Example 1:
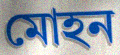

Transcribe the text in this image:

মোহন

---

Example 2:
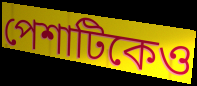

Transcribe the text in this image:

পেশাটিকেও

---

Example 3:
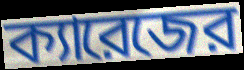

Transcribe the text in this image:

ক্যারেজের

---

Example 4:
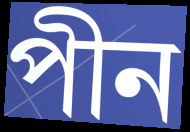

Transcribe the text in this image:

পীন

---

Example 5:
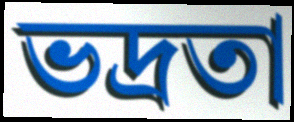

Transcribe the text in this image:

ভদ্রতা